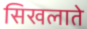
सिखलाते